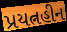
પ્રયત્નહીન